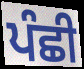
ਪੰਛੀ